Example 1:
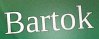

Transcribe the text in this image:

Bartok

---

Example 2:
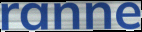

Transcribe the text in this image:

ranne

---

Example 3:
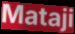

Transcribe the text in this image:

Mataji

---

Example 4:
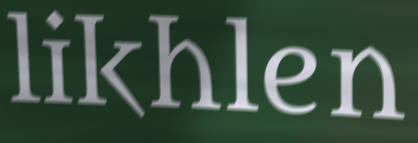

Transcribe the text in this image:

likhlen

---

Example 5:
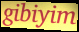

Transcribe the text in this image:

gibiyim